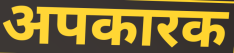
अपकारक